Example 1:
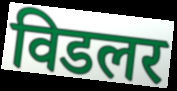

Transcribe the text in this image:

विडलर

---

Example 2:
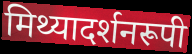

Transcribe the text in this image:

मिथ्यादर्शनरूपी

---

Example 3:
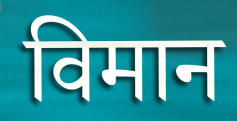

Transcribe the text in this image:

विमान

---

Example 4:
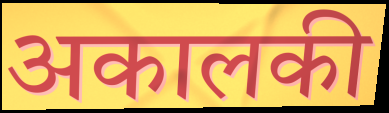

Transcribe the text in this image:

अकालकी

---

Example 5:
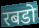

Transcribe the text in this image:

रबडो